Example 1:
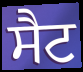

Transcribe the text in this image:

ਸੈਟ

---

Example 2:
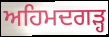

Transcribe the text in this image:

ਅਹਿਮਦਗੜ੍ਹ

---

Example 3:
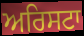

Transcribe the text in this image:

ਅਰਿਸਟਾ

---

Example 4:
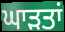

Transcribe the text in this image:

ਘਾਡ਼ਤਾਂ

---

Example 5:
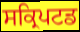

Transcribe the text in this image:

ਸਕ੍ਰਿਪਟਡ